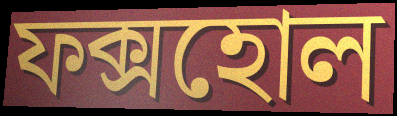
ফক্সহোল